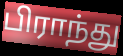
பிராந்து